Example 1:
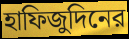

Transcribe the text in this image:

হাফিজুদিনের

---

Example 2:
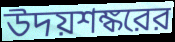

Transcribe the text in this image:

উদয়শঙ্করের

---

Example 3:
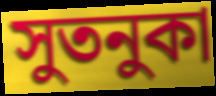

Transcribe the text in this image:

সুতনুকা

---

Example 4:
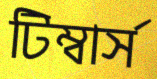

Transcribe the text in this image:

টিম্বার্স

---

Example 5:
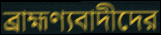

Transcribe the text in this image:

ব্রাহ্মণ্যবাদীদের